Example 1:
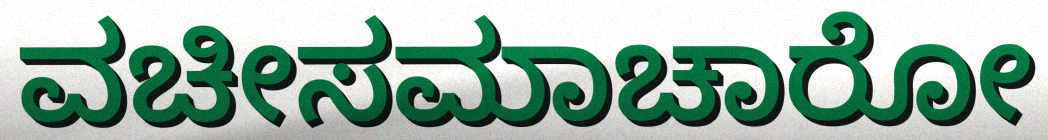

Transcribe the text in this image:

ವಚೀಸಮಾಚಾರೋ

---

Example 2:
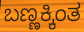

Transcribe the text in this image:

ಬಣ್ಣಕ್ಕಿಂತ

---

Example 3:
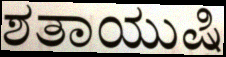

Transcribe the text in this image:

ಶತಾಯುಷಿ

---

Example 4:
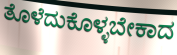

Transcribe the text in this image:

ತೊಳೆದುಕೊಳ್ಳಬೇಕಾದ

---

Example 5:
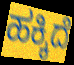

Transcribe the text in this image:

ಹಕ್ಕಿದೆ